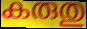
കരുതു